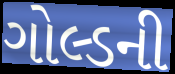
ગોલ્ડની